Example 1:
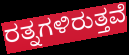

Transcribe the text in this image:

ರತ್ನಗಳಿರುತ್ತವೆ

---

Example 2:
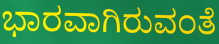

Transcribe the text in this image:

ಭಾರವಾಗಿರುವಂತೆ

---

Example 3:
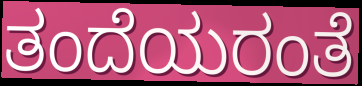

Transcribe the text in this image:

ತಂದೆಯರಂತೆ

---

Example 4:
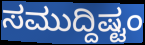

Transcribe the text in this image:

ಸಮುದ್ದಿಷ್ಟಂ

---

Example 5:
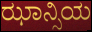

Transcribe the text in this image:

ಝಾನ್ಸಿಯ